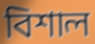
বিশাল